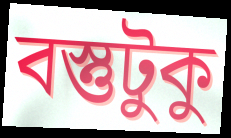
বস্তুটুকু